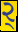
ર્